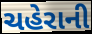
ચહેરાની